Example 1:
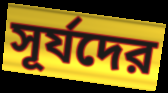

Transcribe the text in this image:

সূর্যদের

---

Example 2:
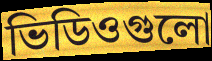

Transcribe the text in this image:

ভিডিওগুলো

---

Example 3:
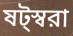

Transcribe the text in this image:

ষট্স্বরা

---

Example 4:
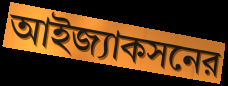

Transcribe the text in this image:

আইজ্যাকসনের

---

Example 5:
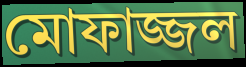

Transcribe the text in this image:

মোফাজ্জল